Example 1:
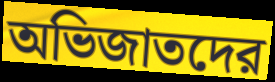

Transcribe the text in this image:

অভিজাতদের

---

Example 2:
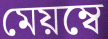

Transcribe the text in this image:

মেয়ম্বে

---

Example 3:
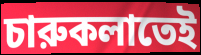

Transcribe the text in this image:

চারুকলাতেই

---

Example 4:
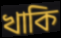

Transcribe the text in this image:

খাকি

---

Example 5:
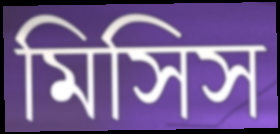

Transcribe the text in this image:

মিসিস